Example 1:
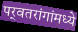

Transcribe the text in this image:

पर्वतरांगांमध्ये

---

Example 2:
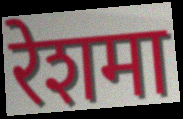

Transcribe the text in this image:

रेशमा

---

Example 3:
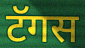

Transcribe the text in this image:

टॅगस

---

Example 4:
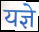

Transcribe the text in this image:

यज्ञे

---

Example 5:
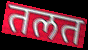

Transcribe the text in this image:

तलत